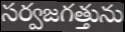
సర్వజగత్తును